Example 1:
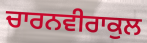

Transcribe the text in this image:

ਚਾਰਨਵੀਰਾਕੁਲ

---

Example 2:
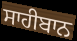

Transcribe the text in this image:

ਸਾਹੀਬਾਨ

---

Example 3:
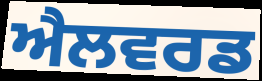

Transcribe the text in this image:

ਐਲਵਰਡ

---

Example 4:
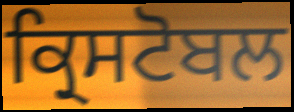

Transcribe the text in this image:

ਕ੍ਰਿਸਟੋਬਲ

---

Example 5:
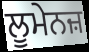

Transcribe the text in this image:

ਲੂਮੇਨਜ਼